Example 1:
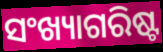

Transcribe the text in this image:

ସଂଖ୍ୟାଗରିଷ୍ଟ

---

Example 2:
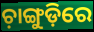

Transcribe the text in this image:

ଚ଼ାଙ୍ଗୁଡ଼ିରେ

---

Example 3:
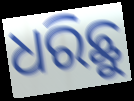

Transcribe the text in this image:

ଧରିଛୁ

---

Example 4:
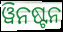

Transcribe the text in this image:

ୱିନଷ୍ଟନ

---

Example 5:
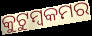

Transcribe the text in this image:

କୁଟୁମ୍ବକମର